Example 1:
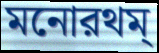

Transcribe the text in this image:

মনোরথম্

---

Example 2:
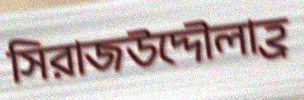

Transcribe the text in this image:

সিরাজউদ্দৌলাহ্র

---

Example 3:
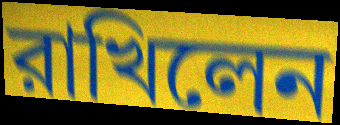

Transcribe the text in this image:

রাখিলেন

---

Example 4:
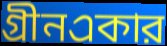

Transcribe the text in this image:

গ্রীনএকার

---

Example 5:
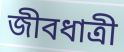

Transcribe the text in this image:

জীবধাত্রী